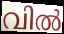
വിൽ